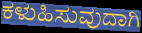
ಕಳುಹಿಸುವುದಾಗಿ